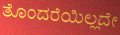
ತೊಂದರೆಯಿಲ್ಲದೇ